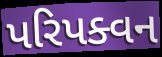
પરિપક્વન